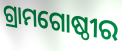
ଗ୍ରାମଗୋଷ୍ଠୀର